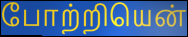
போற்றியென்